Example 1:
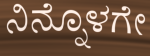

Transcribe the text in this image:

ನಿನ್ನೊಳಗೇ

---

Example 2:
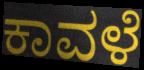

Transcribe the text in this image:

ಕಾವಳೆ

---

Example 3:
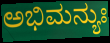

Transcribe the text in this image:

ಅಭಿಮನ್ಯುಃ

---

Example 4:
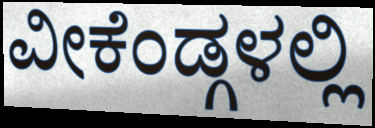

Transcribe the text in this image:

ವೀಕೆಂಡ್ಗಳಲ್ಲಿ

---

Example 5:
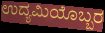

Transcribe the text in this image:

ಉದ್ಯಮಿಯೊಬ್ಬರ